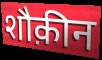
शौक़ीन